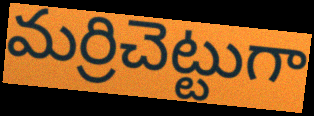
మర్రిచెట్టుగా